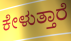
ಕೇಳುತ್ತಾರೆ